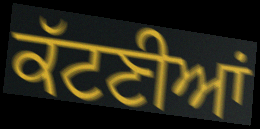
ਕੱਟਣੀਆਂ